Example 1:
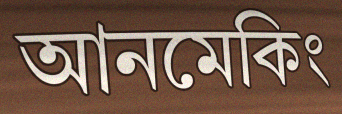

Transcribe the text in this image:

আনমেকিং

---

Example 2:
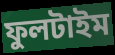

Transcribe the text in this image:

ফুলটাইম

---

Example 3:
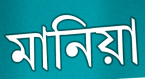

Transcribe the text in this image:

মানিয়া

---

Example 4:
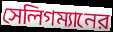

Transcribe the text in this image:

সেলিগম্যানের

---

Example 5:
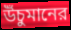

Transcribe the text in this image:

উঁচুমানের